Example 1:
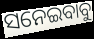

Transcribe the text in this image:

ସନେଇବାବୁ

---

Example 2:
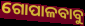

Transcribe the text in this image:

ଗୋପାଳବାବୁ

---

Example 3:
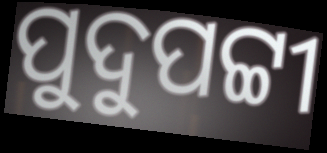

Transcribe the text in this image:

ପୁଦୁପଟ୍ଟୀ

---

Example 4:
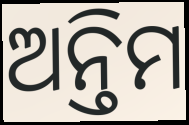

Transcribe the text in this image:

ଅନ୍ତିମ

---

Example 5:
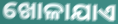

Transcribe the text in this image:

ଖୋଳାଯାଏ